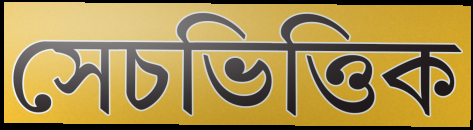
সেচভিত্তিক